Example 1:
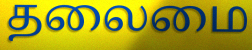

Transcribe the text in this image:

தலைமை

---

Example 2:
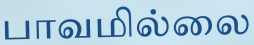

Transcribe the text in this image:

பாவமில்லை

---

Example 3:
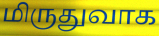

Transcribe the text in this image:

மிருதுவாக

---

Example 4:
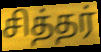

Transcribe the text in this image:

சித்தர்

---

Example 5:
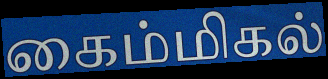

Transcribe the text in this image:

கைம்மிகல்